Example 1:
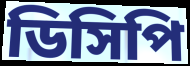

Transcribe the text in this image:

ডিসিপি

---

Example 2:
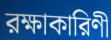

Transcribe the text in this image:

রক্ষাকারিণী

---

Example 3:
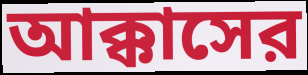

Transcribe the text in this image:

আক্কাসের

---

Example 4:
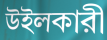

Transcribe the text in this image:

উইলকারী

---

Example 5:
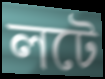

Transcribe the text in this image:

লটে